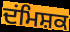
ਦਂਮਿਸ਼ਕ